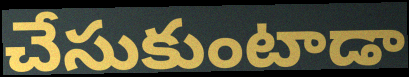
చేసుకుంటాడా